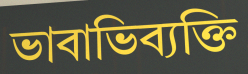
ভাবাভিব্যক্তি